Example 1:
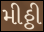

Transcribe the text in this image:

મીઠ્ઠી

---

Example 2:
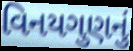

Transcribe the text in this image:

વિનયગુણનું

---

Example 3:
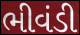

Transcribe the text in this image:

ભીવંડી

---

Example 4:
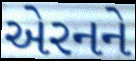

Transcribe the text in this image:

એરનને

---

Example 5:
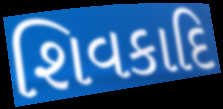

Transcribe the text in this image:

શિવકાદિ